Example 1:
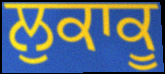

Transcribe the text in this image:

ਲੁਕਾਕੂ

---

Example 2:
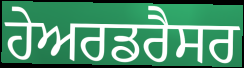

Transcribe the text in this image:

ਹੇਅਰਡਰੈਸਰ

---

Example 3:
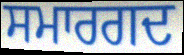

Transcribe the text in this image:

ਸਮਾਰਗਦ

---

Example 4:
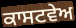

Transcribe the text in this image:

ਕਾਸਟਵੇਅ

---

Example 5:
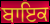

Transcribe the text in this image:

ਬਾਇਕ